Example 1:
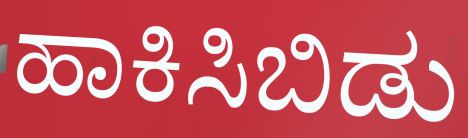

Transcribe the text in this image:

ಹಾಕಿಸಿಬಿಡು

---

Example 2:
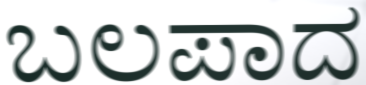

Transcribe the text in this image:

ಬಲಪಾದ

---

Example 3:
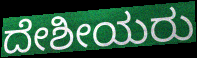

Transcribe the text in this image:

ದೇಶೀಯರು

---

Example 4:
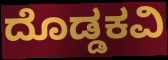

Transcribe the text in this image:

ದೊಡ್ಡಕವಿ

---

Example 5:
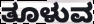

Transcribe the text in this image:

ತೂಳುವ